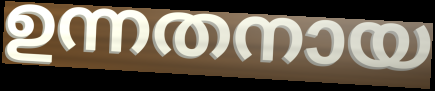
ഉന്നതനായ